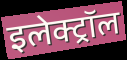
इलेक्ट्रॉल